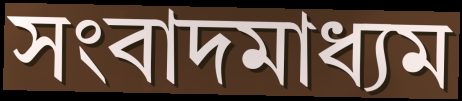
সংবাদমাধ্যম